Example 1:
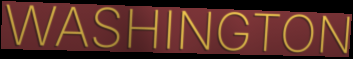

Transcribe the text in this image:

WASHINGTON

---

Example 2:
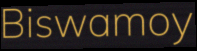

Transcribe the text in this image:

Biswamoy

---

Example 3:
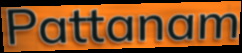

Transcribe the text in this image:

Pattanam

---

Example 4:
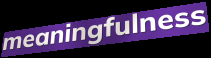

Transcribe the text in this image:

meaningfulness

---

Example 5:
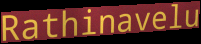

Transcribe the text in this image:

Rathinavelu